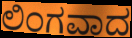
ಲಿಂಗವಾದ